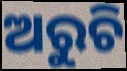
ଅରୁଚି